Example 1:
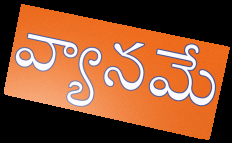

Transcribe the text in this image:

వ్యానమే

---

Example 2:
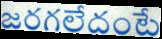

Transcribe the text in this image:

జరగలేదంటే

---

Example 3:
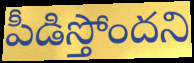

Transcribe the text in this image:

పీడిస్తోందని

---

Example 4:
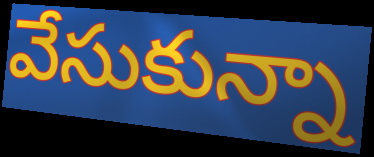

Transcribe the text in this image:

వేసుకున్నా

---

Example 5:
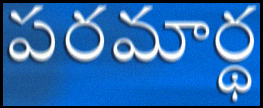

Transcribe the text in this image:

పరమార్థ